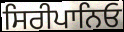
ਸਿਰੀਪਾਨਿਓ